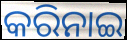
କରିନାଇ